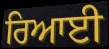
ਰਿਆਈ